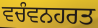
ਵਚੰਵਨਹਰਤ